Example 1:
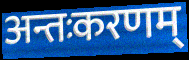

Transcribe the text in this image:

अन्तःकरणम्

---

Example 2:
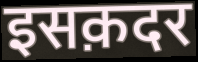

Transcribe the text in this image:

इसक़दर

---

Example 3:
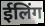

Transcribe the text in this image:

ईलिंग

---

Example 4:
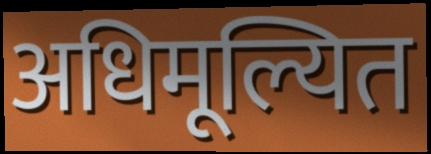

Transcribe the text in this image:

अधिमूल्यित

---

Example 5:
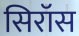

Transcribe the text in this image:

सिरॉस